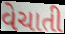
વેચાતી